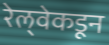
रेल्वेकडून